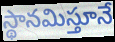
స్థానమిస్తూనే